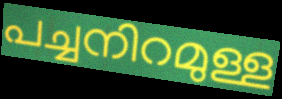
പച്ചനിറമുള്ള